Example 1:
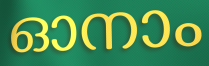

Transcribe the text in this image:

ഓനാം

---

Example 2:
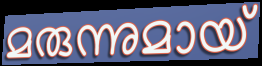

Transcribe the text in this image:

മരുന്നുമായ്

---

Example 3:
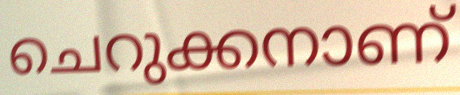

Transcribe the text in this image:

ചെറുക്കനാണ്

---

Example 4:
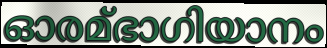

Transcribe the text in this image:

ഓരമ്ഭാഗിയാനം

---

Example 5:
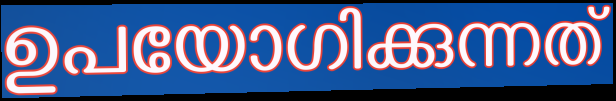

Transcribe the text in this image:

ഉപയോഗിക്കുന്നത്